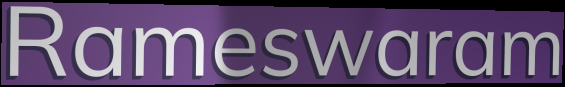
Rameswaram